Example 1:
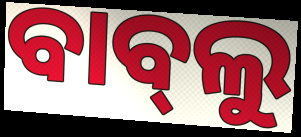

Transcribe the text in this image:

ବାବ୍‍ଲୁ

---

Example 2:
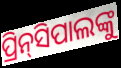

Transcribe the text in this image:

ପ୍ରିନ୍‌ସିପାଲଙ୍କୁ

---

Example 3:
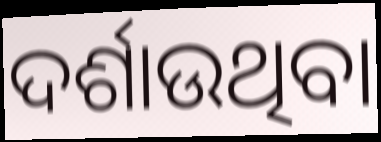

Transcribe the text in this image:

ଦର୍ଶାଉଥିବା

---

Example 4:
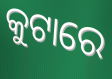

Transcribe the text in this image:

କୁଟାରେ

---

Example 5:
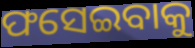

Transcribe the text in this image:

ଫସେଇବାକୁ